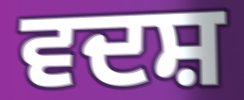
ਵਦਸ਼